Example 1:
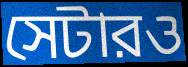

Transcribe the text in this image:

সেটারও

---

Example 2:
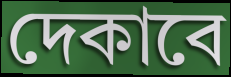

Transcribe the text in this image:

দেকাবে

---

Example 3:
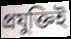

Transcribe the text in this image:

প্রযুক্তিই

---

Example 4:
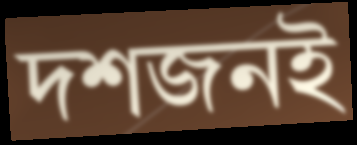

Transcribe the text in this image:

দশজনই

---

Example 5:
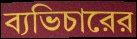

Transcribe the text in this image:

ব্যভিচারের